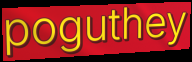
poguthey